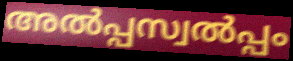
അൽപ്പസ്വൽപ്പം